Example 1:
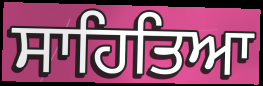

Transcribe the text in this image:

ਸਾਹਿਤਿਆ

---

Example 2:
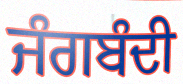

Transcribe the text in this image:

ਜੰਗਬੰਦੀ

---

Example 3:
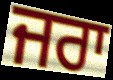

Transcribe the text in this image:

ਜਰਾ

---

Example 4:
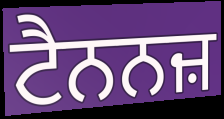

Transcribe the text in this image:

ਟੈਨਨਜ਼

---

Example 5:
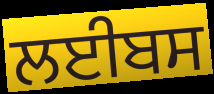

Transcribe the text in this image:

ਲਈਬਸ